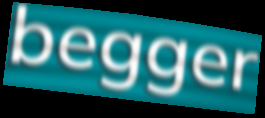
begger